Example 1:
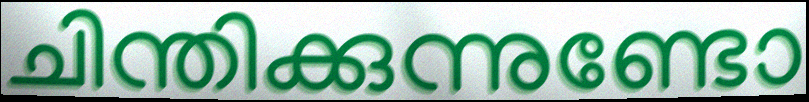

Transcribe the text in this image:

ചിന്തിക്കുന്നുണ്ടോ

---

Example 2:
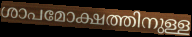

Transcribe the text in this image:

ശാപമോക്ഷത്തിനുള്ള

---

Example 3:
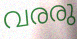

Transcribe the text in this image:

വരരു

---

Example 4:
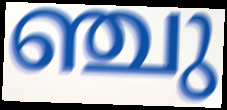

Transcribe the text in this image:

ഞ്ചു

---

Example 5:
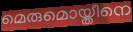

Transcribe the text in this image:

മെരുമൊയ്തീനെ